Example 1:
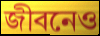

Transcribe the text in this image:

জীবনেও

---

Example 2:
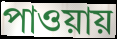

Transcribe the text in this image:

পাওয়ায়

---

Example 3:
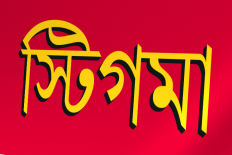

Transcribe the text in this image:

স্টিগমা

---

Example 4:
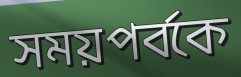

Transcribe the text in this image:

সময়পর্বকে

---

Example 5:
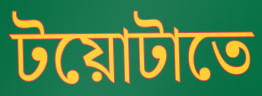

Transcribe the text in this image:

টয়োটাতে